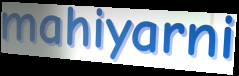
mahiyarni